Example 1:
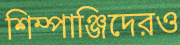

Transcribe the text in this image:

শিম্পাঞ্জিদেরও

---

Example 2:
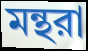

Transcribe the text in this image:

মন্থরা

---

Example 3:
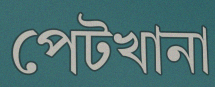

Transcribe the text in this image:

পেটখানা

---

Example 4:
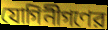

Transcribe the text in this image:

যোগিনীগণের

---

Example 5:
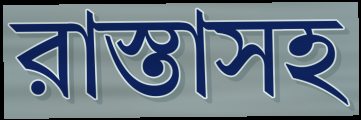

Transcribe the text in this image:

রাস্তাসহ